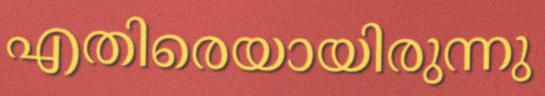
എതിരെയായിരുന്നു